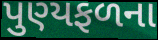
પુણ્યફળના